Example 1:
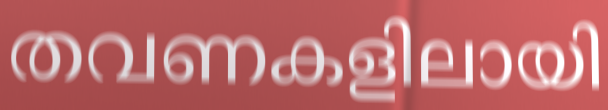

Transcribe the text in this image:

തവണകളിലായി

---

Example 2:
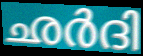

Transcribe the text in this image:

ഛർദി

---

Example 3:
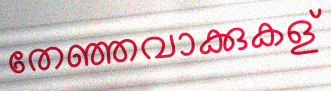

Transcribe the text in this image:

തേഞ്ഞവാക്കുകള്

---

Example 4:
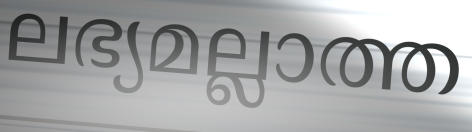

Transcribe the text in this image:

ലഭ്യമല്ലാത്ത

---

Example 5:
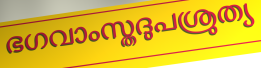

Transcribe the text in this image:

ഭഗവാംസ്തദുപശ്രുത്യ